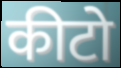
कीटो